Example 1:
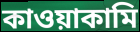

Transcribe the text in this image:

কাওয়াকামি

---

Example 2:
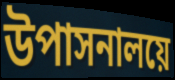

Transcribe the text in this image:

উপাসনালয়ে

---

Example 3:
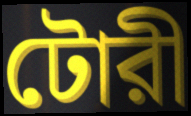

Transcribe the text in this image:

টোরী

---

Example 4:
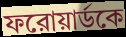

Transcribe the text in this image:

ফরোয়ার্ডকে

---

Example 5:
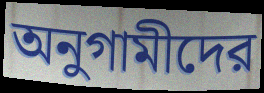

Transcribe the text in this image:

অনুগামীদের